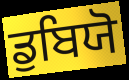
ਡੁਬਿਯੋ